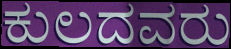
ಕುಲದವರು